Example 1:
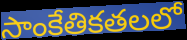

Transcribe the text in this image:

సాంకేతికతలలో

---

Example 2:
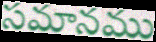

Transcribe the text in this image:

సమానము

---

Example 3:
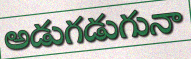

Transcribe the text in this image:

అడుగడుగునా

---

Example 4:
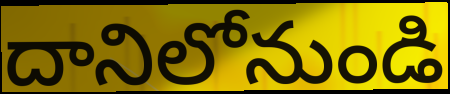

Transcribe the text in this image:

దానిలోనుండి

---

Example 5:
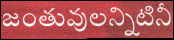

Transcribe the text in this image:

జంతువులన్నిటినీ